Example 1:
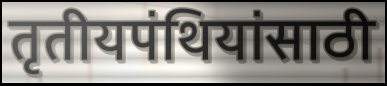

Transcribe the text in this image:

तृतीयपंथियांसाठी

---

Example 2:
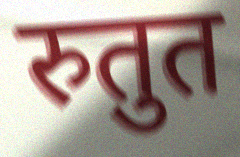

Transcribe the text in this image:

रुतुत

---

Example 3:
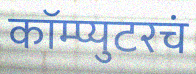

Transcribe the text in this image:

कॉम्प्युटरचं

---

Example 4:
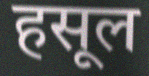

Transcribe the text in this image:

हसूल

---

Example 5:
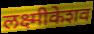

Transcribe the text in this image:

लक्ष्मीकेशव